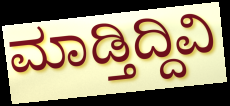
ಮಾಡ್ತಿದ್ದಿವಿ